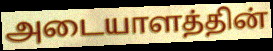
அடையாளத்தின்